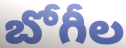
బోగీల